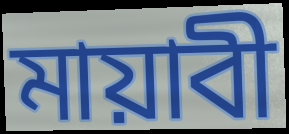
মায়াবী